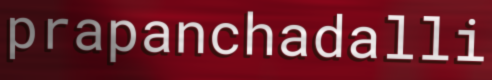
prapanchadalli